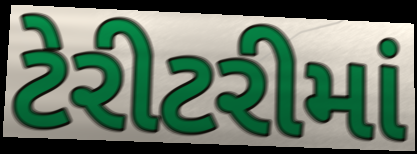
ટેરીટરીમાં